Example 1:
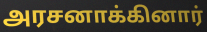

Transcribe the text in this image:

அரசனாக்கினார்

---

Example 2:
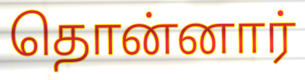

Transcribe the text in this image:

தொன்னார்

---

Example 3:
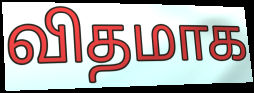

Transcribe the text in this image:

விதமாக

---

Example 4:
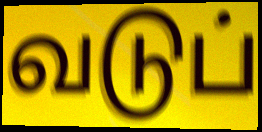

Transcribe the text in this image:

வடுப்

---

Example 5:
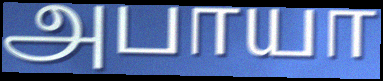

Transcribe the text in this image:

அபாயா